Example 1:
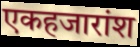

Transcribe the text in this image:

एकहजारांश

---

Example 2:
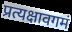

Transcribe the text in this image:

प्रत्यक्षावगमं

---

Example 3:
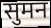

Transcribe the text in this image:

सुमन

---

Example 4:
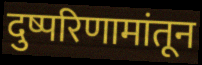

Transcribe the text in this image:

दुष्परिणामांतून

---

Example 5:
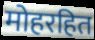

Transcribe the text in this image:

मोहरहित